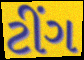
ટીંગ